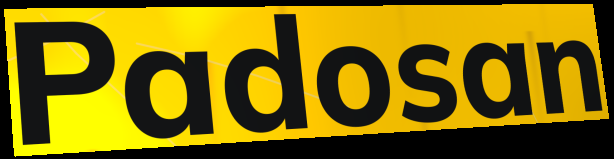
Padosan